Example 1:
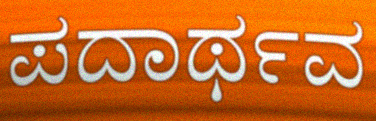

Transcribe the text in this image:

ಪದಾರ್ಥವ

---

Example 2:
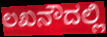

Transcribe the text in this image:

ಲಖನೌದಲ್ಲಿ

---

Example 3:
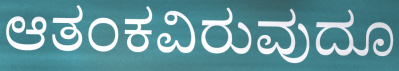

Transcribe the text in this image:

ಆತಂಕವಿರುವುದೂ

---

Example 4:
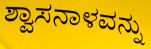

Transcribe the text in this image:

ಶ್ವಾಸನಾಳವನ್ನು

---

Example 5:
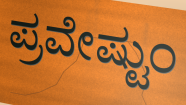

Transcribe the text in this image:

ಪ್ರವೇಷ್ಟುಂ